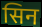
सिन